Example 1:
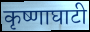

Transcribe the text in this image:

कृष्णाघाटी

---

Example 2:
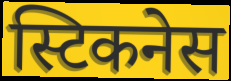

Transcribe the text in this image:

स्टिकनेस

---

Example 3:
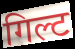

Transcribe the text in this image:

गिल्ट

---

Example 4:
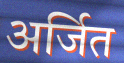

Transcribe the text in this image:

अर्जित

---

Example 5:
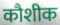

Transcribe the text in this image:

कौशीक